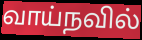
வாய்நவில்